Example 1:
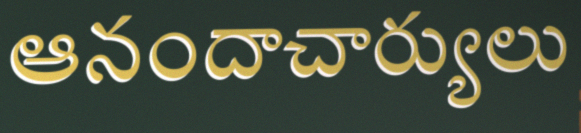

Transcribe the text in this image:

ఆనందాచార్యులు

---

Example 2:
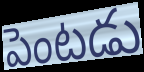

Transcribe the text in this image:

పెంటడు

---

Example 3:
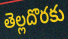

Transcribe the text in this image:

తెల్లదొరకు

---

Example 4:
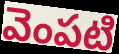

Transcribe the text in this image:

వెంపటి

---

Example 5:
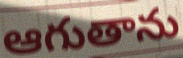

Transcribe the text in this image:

ఆగుతాను